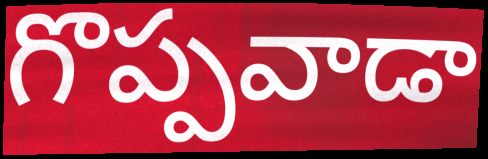
గొప్పవాడా